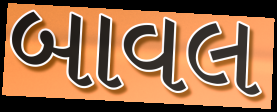
બાવલ